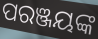
ପରଞ୍ଜୟଙ୍କ